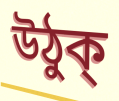
উঠুক্